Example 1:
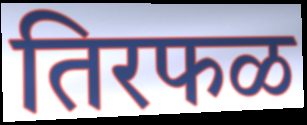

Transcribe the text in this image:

तिरफळ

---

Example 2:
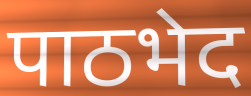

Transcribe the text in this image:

पाठभेद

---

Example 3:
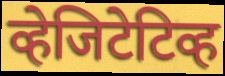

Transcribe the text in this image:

व्हेजिटेटिव्ह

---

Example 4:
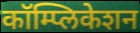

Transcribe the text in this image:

कॉम्प्लिकेशन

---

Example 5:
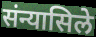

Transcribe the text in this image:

संन्यासिले